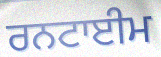
ਰਨਟਾਈਮ